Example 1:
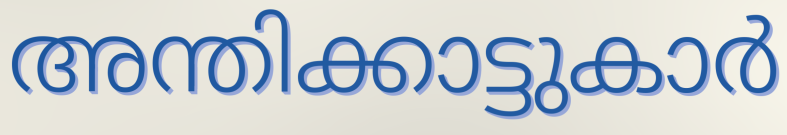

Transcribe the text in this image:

അന്തിക്കാട്ടുകാർ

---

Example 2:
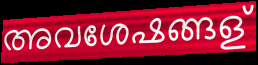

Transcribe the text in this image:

അവശേഷങ്ങള്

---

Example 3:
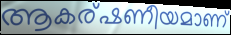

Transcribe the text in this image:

ആകര്ഷണീയമാണ്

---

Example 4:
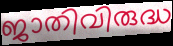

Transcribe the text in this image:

ജാതിവിരുദ്ധ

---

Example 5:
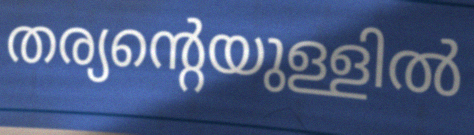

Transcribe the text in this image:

തര്യന്റെയുള്ളിൽ